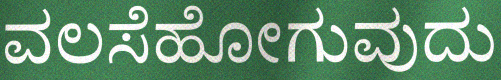
ವಲಸೆಹೋಗುವುದು